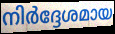
നിർദ്ദേശമായ